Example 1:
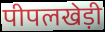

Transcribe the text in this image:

पीपलखेड़ी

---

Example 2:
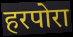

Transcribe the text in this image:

हरपोरा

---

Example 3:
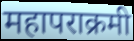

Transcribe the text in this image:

महापराक्रमी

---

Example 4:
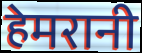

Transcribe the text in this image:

हेमरानी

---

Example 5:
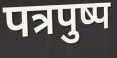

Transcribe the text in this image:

पत्रपुष्प